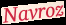
Navroz